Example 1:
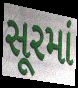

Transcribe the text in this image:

સૂરમાં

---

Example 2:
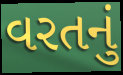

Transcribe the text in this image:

વરતનું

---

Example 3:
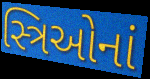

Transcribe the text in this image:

સ્ત્રિઓનાં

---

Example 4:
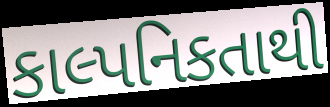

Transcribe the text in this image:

કાલ્પનિકતાથી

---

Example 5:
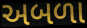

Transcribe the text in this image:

અબળા